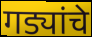
गड्यांचे